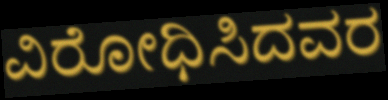
ವಿರೋಧಿಸಿದವರ